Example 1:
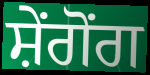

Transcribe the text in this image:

ਸ਼ੇਂਗੋਂਗ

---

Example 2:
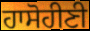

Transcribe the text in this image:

ਹਾਸੋਹੀਣੀ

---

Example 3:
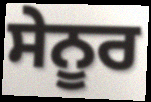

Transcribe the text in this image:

ਸੇਨੂਰ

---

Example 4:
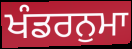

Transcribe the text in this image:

ਖੰਡਰਨੁਮਾ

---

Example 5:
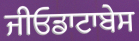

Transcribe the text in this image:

ਜੀਓਡਾਟਾਬੇਸ